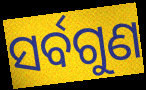
ସର୍ବଗୁଣ